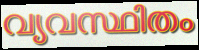
വ്യവസ്ഥിതം